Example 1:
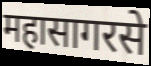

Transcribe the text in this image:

महासागरसे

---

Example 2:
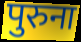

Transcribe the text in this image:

पुरुना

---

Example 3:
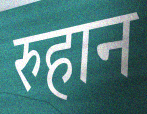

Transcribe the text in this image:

रुहान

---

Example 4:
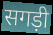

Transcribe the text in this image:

सगड़ी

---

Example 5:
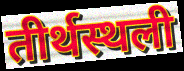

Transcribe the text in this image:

तीर्थस्थली